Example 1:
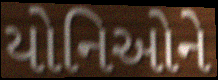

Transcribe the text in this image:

યોનિઓને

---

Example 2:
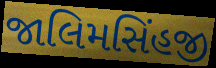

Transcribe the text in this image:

જાલિમસિંહજી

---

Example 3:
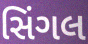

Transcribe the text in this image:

સિંગલ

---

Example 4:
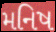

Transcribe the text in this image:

મનિષ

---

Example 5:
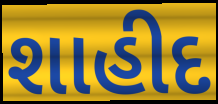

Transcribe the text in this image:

શાહીદ